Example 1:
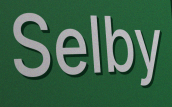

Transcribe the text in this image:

Selby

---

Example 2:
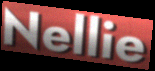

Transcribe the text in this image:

Nellie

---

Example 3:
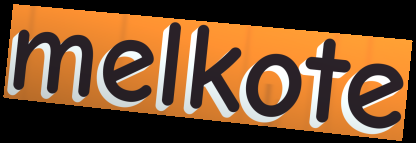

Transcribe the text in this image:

melkote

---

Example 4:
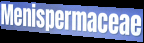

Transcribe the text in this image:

Menispermaceae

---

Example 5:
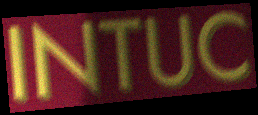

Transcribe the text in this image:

INTUC